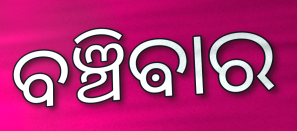
ବଞ୍ଚିଵାର